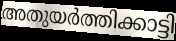
അതുയർത്തിക്കാട്ടി